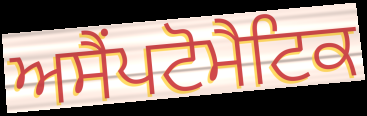
ਅਸੈਂਪਟੋਮੈਟਿਕ